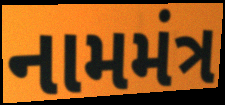
નામમંત્ર